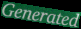
Generated